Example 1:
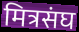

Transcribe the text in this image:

मित्रसंघ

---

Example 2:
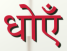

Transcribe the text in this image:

धोएँ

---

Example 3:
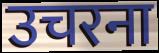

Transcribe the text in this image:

उचरना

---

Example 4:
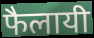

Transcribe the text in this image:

फैलायी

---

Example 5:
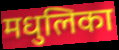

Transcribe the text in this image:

मधुलिका